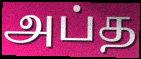
அப்த